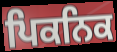
ਪਿਕਨਿਕ